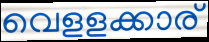
വെളളക്കാര്